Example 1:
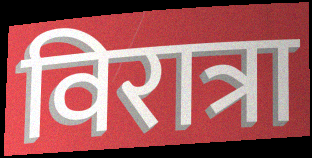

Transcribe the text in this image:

विरात्रा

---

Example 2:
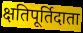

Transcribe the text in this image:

क्षतिपूर्तिदाता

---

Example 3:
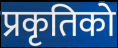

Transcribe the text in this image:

प्रकृतिको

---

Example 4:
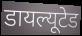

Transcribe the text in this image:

डायल्यूटेड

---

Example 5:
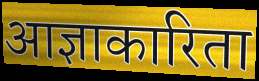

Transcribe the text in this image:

आज्ञाकारिता